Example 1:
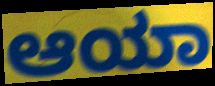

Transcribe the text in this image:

ಆಯಾ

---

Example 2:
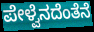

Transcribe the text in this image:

ಪೇಳ್ವೆನದೆಂತೆನೆ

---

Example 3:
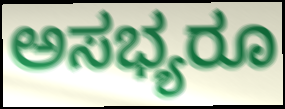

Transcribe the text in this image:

ಅಸಭ್ಯರೂ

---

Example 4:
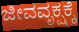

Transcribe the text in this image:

ಜೀವವೃಕ್ಷಕ್ಕೆ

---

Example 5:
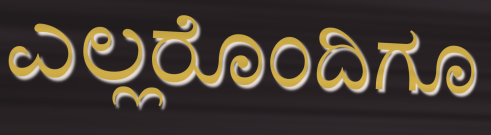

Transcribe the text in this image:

ಎಲ್ಲರೊಂದಿಗೂ